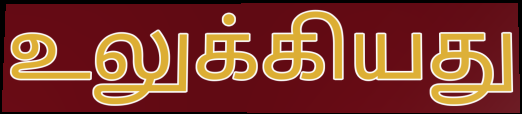
உலுக்கியது